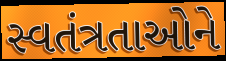
સ્વતંત્રતાઓને